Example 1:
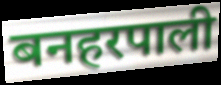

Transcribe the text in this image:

बनहरपाली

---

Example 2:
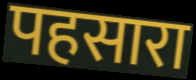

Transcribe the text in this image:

पहसारा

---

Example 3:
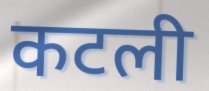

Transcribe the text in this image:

कटली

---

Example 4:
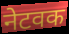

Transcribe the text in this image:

नेटवक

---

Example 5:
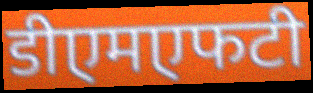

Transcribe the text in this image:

डीएमएफटी